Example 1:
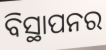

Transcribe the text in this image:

ବିସ୍ଥାପନର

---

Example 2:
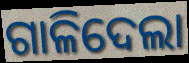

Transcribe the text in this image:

ଗାଳିଦେଲା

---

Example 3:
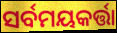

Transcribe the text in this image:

ସର୍ବମୟକର୍ତ୍ତା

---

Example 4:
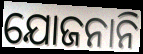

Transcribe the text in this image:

ଯୋଜନାନି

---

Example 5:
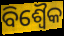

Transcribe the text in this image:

ବିଶ୍ୱୈକ